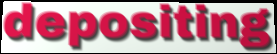
depositing